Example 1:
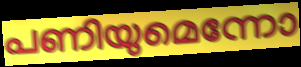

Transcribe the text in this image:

പണിയുമെന്നോ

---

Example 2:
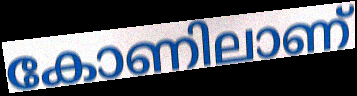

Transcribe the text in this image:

കോണിലാണ്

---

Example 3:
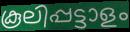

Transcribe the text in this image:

കൂലിപ്പട്ടാളം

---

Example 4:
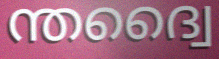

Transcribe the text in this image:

ന്തദ്വൈ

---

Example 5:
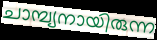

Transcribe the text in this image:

ചാമ്പ്യനായിരുന്ന